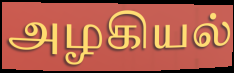
அழகியல்